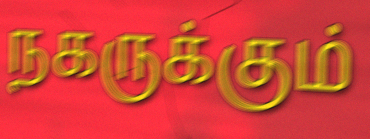
நகருக்கும்